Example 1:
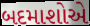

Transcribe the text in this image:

બદમાશોએ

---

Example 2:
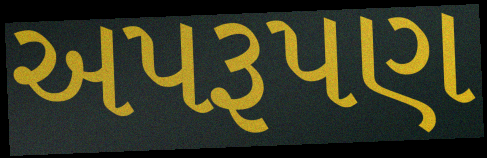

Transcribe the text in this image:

અપરૂપણ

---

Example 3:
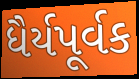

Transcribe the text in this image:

ધૈર્યપૂર્વક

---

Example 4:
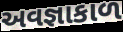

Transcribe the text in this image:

અવજ્ઞાકાળ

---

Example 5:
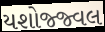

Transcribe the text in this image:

યશોજ્જ્વલ